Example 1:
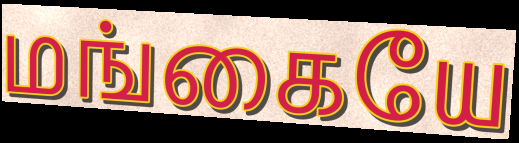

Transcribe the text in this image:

மங்கையே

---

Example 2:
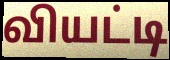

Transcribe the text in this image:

வியட்டி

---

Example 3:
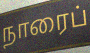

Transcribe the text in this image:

நாரைப்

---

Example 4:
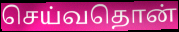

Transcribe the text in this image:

செய்வதொன்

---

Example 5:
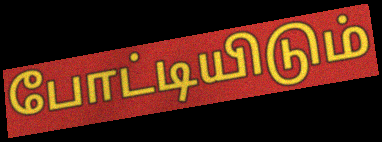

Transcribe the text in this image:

போட்டியிடும்